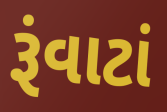
રૂંવાટાં